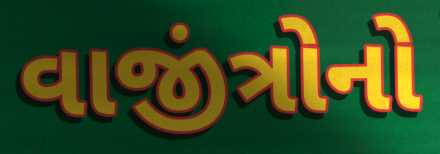
વાજીંત્રોનો